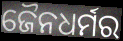
ଜୈନଧର୍ମର